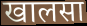
खालसा